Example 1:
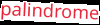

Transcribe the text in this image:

palindrome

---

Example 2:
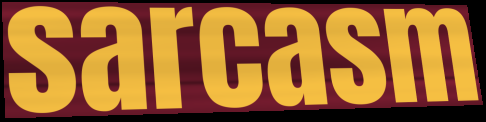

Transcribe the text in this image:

sarcasm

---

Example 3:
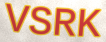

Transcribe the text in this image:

VSRK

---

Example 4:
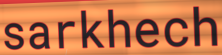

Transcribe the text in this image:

sarkhech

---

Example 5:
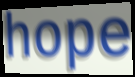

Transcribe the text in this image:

hope